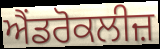
ਐਂਡਰੋਕਲੀਜ਼